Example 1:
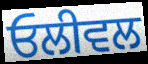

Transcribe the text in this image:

ਓਲੀਵਲ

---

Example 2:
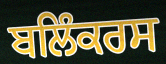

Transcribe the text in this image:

ਬਲਿੰਕਰਸ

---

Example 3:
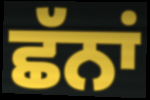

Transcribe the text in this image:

ਛੱਨਾਂ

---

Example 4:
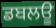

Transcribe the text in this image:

ਡਬਲਊ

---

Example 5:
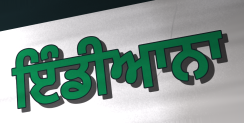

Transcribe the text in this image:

ਇੰਡੀਆਨਾ